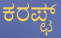
ಕರಪ್ಟ್